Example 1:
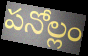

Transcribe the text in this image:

పనోల్లం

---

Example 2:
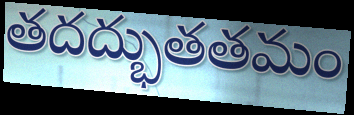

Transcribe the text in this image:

తదద్భుతతమం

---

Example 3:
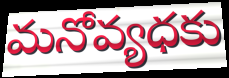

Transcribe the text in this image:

మనోవ్యధకు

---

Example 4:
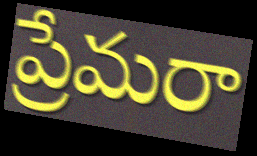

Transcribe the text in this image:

ప్రేమరా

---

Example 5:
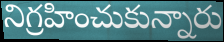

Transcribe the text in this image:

నిగ్రహించుకున్నారు